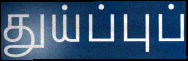
துய்ப்புப்